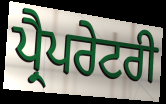
ਪ੍ਰੈਪਰੇਟਰੀ